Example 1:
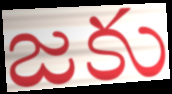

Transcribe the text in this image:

జకు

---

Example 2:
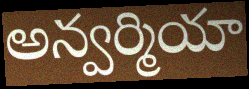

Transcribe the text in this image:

అన్వర్మియా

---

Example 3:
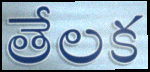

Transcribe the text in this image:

తేలక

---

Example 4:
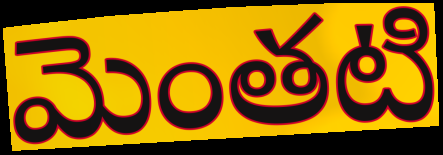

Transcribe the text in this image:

మెంతటి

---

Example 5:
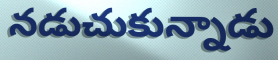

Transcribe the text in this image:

నడుచుకున్నాడు